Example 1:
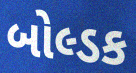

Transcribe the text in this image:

બોલ્ડક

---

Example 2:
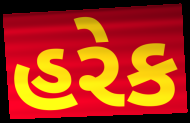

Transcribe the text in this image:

હરેક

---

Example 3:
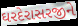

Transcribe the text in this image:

ઘરદેરાસરજીને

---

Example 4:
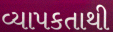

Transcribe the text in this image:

વ્યાપકતાથી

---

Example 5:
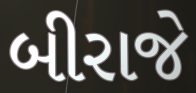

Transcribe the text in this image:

બીરાજે